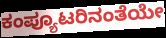
ಕಂಪ್ಯೂಟರಿನಂತೆಯೇ